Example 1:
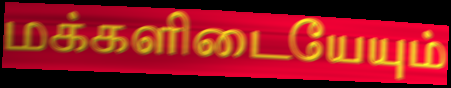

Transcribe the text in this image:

மக்களிடையேயும்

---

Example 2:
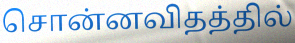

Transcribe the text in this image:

சொன்னவிதத்தில்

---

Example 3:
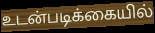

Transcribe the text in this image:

உடன்படிக்கையில்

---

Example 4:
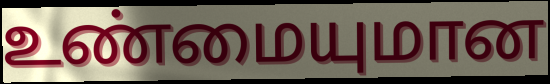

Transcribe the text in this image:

உண்மையுமான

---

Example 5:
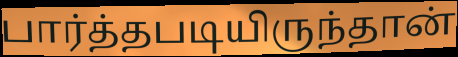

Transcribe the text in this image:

பார்த்தபடியிருந்தான்